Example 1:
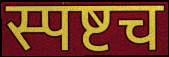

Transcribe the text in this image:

स्पष्टच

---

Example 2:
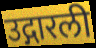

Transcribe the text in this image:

उद्गारली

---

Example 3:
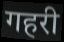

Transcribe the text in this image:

गहरी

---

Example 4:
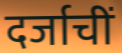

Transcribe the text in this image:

दर्जाचीं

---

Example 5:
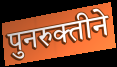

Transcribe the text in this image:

पुनरुक्तीने